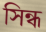
সিন্ধ